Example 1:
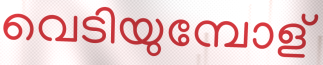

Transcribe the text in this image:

വെടിയുമ്പോള്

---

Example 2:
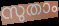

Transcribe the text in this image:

സുതാം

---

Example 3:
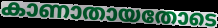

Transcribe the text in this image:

കാണാതായതോടെ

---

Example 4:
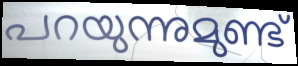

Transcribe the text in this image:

പറയുന്നുമുണ്ട്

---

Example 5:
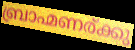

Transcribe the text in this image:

ബ്രാഹ്മണര്ക്കു